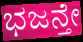
ಭಜನ್ತೇ